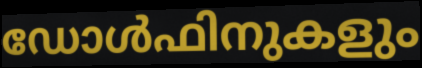
ഡോൾഫിനുകളും